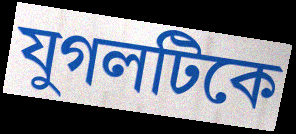
যুগলটিকে